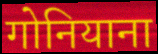
गोनियाना